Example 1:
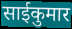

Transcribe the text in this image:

साईकुमार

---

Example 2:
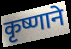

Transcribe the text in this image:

कृष्णाने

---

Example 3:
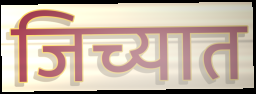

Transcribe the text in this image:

जिच्यात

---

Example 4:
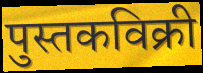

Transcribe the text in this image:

पुस्तकविक्री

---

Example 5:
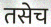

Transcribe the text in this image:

तसेच